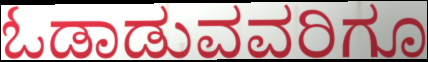
ಓಡಾಡುವವರಿಗೂ